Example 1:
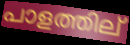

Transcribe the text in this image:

പാളത്തില്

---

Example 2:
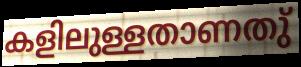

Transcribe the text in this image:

കളിലുള്ളതാണതു്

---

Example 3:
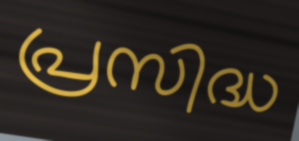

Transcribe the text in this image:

പ്രസിദ്ധ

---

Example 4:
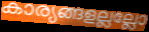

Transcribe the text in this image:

കാര്യങ്ങളല്ലല്ലോ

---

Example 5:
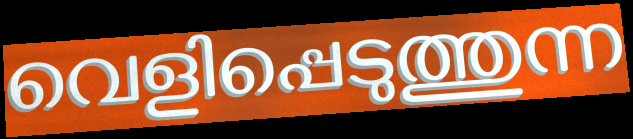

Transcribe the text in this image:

വെളിപ്പെടുത്തുന്ന